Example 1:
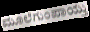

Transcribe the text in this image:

ಮೂಲೆಗುಂಪಾಯ್ತು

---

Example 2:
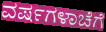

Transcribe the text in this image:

ವರ್ಷಗಳಾಚೆಗೆ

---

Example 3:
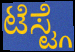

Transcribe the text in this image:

ಟೆಸ್ಟ್ಗೆ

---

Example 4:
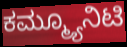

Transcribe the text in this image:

ಕಮ್ಮ್ಯೂನಿಟಿ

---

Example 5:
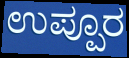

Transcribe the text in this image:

ಉಪ್ಪೂರ